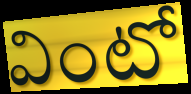
వింటో